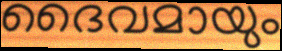
ദൈവമായും